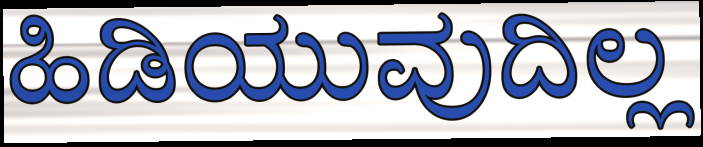
ಹಿಡಿಯುವುದಿಲ್ಲ